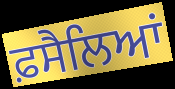
ਫ਼ਸੈਲਿਆਂ